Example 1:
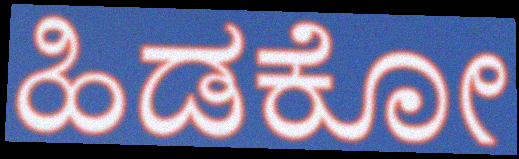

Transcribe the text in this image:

ಹಿಡಕೋ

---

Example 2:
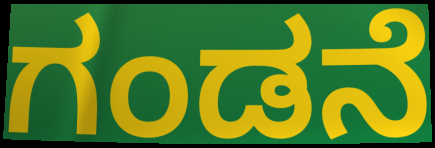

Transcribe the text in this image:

ಗಂಡನೆ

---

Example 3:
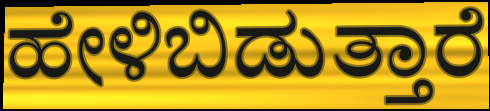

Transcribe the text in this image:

ಹೇಳಿಬಿಡುತ್ತಾರೆ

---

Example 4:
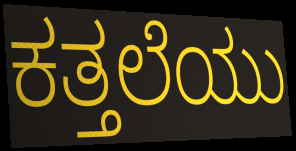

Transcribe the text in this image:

ಕತ್ತಲೆಯು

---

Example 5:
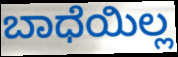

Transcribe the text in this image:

ಬಾಧೆಯಿಲ್ಲ